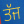
ਤੱਜ